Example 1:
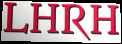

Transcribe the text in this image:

LHRH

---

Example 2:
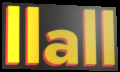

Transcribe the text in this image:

llall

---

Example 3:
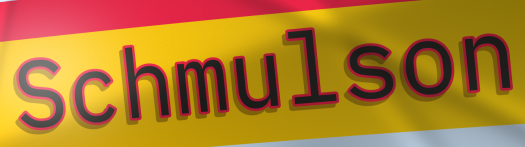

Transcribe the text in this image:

Schmulson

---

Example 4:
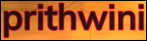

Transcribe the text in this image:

prithwini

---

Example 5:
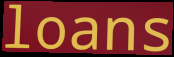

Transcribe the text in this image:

loans